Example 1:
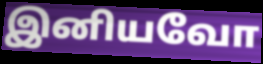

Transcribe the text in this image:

இனியவோ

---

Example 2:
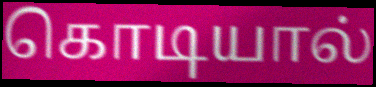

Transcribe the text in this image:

கொடியால்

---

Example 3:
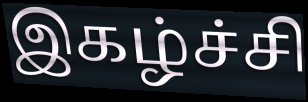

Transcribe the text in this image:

இகழ்ச்சி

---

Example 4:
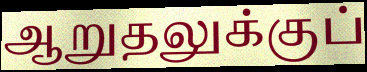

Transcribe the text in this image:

ஆறுதலுக்குப்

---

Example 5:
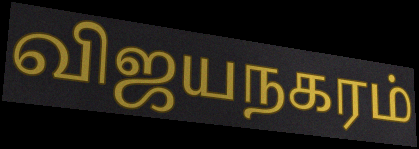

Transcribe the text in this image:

விஜயநகரம்